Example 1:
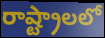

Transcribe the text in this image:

రాష్ట్రాలలో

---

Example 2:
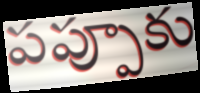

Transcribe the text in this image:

పప్పూకు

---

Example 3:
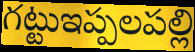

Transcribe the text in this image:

గట్టుఇప్పలపల్లి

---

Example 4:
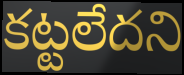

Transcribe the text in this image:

కట్టలేదని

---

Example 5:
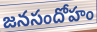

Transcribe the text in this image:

జనసందోహం